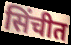
सिंचीत